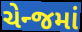
ચેન્જમાં